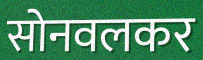
सोनवलकर